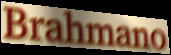
Brahmano